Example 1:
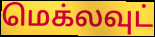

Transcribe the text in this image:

மெக்லவுட்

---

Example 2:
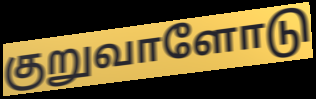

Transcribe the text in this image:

குறுவாளோடு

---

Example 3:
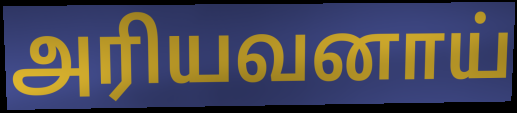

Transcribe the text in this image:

அரியவனாய்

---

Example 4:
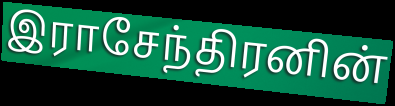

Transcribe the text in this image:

இராசேந்திரனின்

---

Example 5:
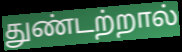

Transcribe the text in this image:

துண்டற்றால்